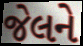
જેલને